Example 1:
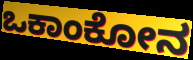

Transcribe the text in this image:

ಒಕಾಂಕೋನ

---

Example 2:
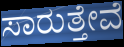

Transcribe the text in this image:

ಸಾರುತ್ತೇವೆ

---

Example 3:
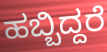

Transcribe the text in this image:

ಹಬ್ಬಿದ್ದರೆ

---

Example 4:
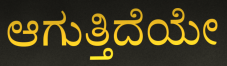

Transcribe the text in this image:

ಆಗುತ್ತಿದೆಯೇ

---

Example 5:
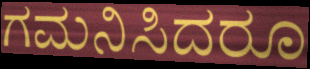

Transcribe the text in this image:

ಗಮನಿಸಿದರೂ